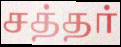
சத்தர்